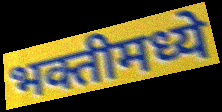
भक्तीमध्ये